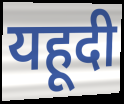
यहूदी